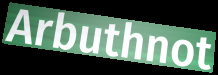
Arbuthnot